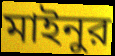
মাইনুর